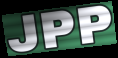
JPP